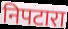
निपटारा